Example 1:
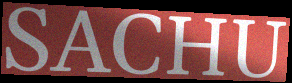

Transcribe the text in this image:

SACHU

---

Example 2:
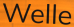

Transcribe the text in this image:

Welle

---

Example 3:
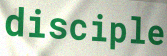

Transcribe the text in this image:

disciple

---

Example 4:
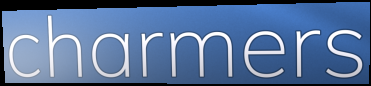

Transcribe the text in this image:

charmers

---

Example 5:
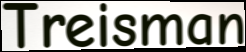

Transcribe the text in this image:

Treisman